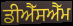
ਡੀਐੱਸਐੱਮ